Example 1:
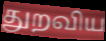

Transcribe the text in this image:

துறவிய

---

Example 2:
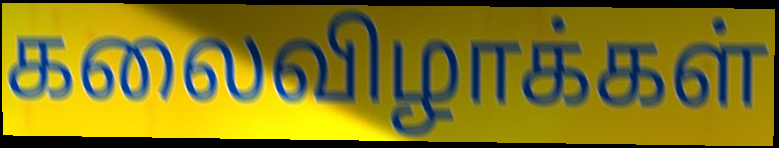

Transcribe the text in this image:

கலைவிழாக்கள்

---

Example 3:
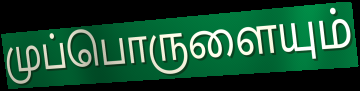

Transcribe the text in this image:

முப்பொருளையும்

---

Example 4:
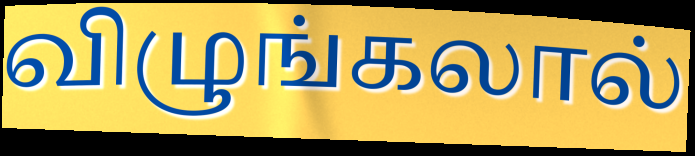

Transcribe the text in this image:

விழுங்கலால்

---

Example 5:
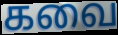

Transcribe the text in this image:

கவை